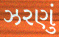
ઝરણું